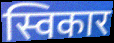
स्विकार